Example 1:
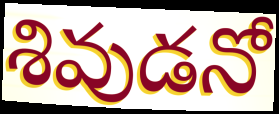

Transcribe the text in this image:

శివుడనో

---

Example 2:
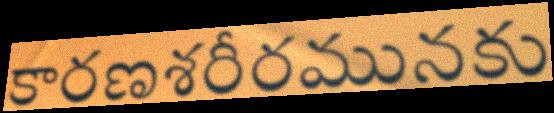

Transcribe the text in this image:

కారణశరీరమునకు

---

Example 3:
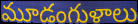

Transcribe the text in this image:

మూడంగుళాలు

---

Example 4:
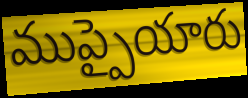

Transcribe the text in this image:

ముప్పైయారు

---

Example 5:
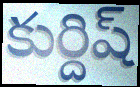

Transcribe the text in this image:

కుర్దిష్